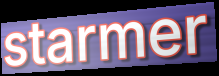
starmer